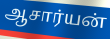
ஆசார்யன்